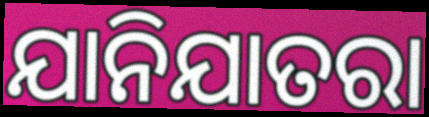
ଯାନିଯାତରା